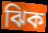
ঝিক